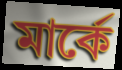
মার্কে